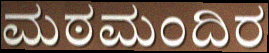
ಮಠಮಂದಿರ